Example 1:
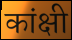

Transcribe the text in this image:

कांक्षी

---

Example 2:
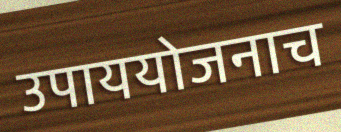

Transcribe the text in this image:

उपाययोजनाच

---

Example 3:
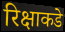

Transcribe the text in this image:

रिक्षाकडे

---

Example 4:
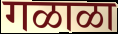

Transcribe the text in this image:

गळाळा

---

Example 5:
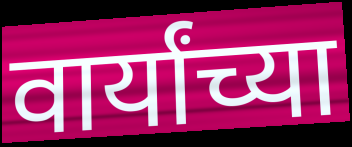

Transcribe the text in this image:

वार्यांच्या